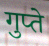
गुप्ते